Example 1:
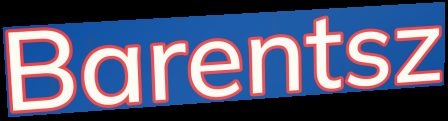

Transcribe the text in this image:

Barentsz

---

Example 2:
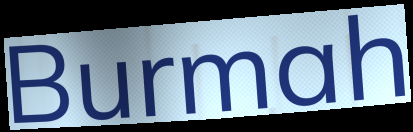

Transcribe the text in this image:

Burmah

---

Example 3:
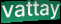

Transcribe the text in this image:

vattay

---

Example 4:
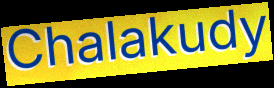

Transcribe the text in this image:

Chalakudy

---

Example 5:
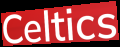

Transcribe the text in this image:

Celtics